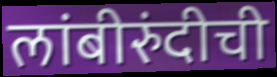
लांबीरुंदीची